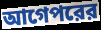
আগেপরের